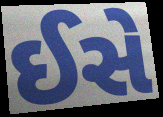
ઈસે